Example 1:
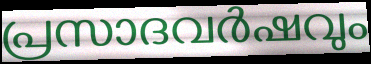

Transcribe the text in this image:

പ്രസാദവർഷവും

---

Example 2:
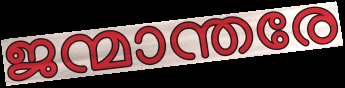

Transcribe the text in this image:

ജന്മാന്തരേ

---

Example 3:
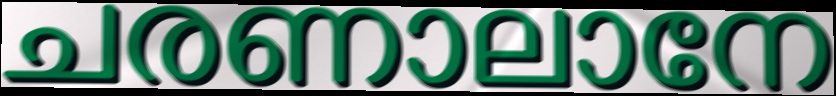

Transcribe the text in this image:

ചരണാലാനേ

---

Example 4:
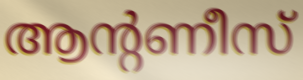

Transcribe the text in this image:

ആന്റണീസ്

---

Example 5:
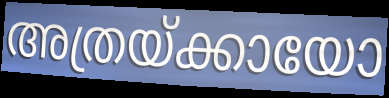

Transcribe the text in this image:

അത്രയ്ക്കായോ